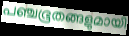
പഞ്ചഭൂതങ്ങളുമായി